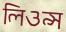
লিওন্স